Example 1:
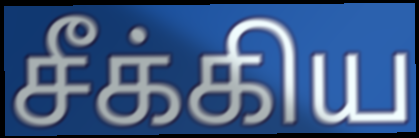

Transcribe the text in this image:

சீக்கிய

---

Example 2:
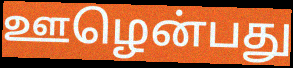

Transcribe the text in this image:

ஊழென்பது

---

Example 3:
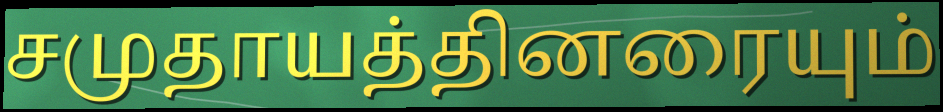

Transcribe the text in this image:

சமுதாயத்தினரையும்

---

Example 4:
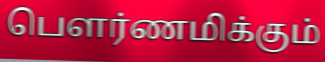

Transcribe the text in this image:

பௌர்ணமிக்கும்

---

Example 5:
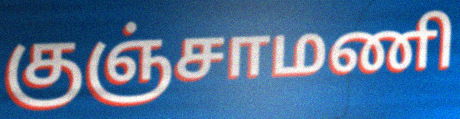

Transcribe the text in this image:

குஞ்சாமணி